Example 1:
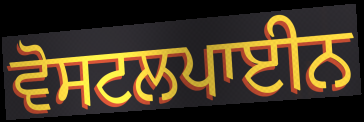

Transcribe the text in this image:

ਵੋਸਟਲਪਾਈਨ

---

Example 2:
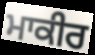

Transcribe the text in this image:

ਮਾਕੀਰ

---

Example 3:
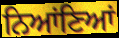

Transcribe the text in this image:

ਨਿਆਂਣਿਆਂ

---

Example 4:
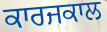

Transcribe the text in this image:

ਕਾਰਜਕਾਲ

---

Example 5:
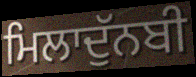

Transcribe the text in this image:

ਮਿਲਾਦੁੱਨਬੀ